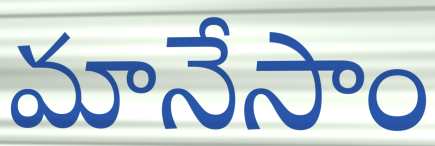
మానేసాం